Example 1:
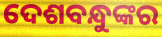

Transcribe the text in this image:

ଦେଶବନ୍ଧୁଙ୍କର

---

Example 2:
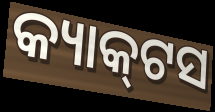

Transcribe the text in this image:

କ୍ୟାକ୍‌ଟସ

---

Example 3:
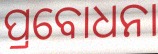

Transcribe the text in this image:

ପ୍ରବୋଧନା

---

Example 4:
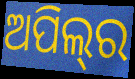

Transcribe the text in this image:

ଅପିଲ୍‍ର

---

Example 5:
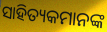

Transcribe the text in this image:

ସାହିତ୍ୟକମାନଙ୍କ